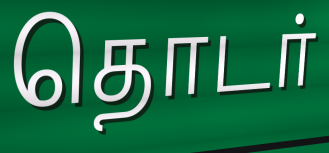
தொடர்